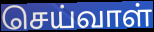
செய்வாள்